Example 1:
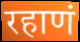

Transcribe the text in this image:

रहाणं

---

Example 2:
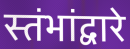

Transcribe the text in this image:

स्तंभांद्वारे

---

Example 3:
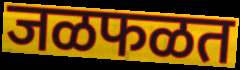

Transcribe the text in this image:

जळफळत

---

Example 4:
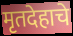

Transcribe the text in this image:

मृतदेहाचे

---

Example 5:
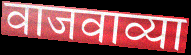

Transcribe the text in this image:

वाजवाव्या